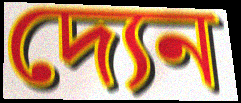
দ্যেন